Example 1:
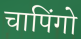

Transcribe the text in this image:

चापिंगो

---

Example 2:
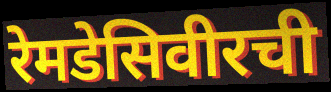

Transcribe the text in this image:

रेमडेसिवीरची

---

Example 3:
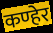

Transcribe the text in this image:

कण्हेर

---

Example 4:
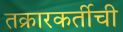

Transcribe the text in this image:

तक्रारकर्तीची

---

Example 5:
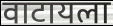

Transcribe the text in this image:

वाटायला